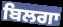
ਬਿਲਗਾ